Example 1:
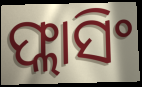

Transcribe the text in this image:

ଫ୍ଲାସିଂ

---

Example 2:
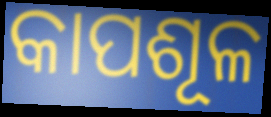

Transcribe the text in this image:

କାପଶୂଳ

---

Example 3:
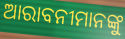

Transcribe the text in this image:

ଆରାବନୀମାନଙ୍କୁ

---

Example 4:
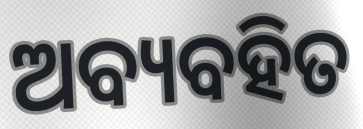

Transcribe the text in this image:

ଅବ୍ୟବହିତ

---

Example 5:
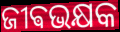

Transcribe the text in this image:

ଜୀଵଭକ୍ଷକ